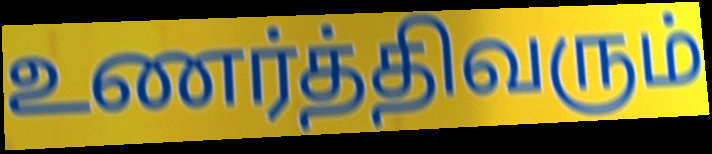
உணர்த்திவரும்